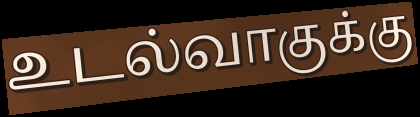
உடல்வாகுக்கு